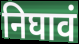
निघावं